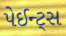
પેઈન્ટ્સ